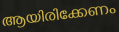
ആയിരിക്കേണം